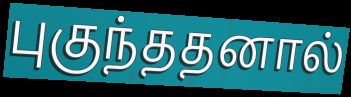
புகுந்ததனால்